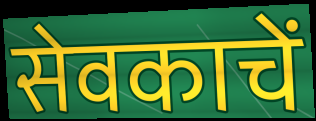
सेवकाचें